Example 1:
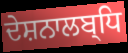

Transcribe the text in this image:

ਦੇਸ਼ਨਾਲਬ੍ਧਿ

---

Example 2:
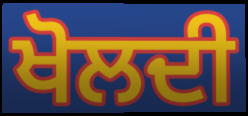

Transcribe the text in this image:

ਖੋਲਦੀ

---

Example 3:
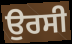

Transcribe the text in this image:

ਉਰਸੀ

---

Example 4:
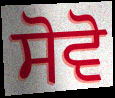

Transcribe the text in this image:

ਸੋਵੋ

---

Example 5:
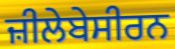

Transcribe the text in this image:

ਜ਼ੀਲੇਬੇਸੀਰਨ